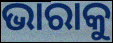
ଭାରାକୁ